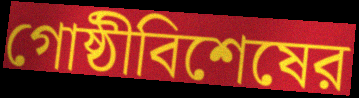
গোষ্ঠীবিশেষের